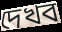
দেখব